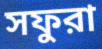
সফুরা